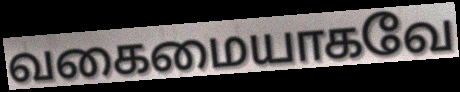
வகைமையாகவே